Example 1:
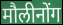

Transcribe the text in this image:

मौलीनोंग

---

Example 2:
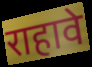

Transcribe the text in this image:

राहावे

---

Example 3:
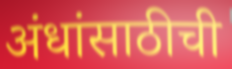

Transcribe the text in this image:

अंधांसाठीची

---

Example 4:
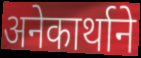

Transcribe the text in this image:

अनेकार्थाने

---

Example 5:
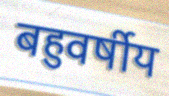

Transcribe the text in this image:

बहुवर्षीय